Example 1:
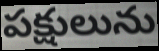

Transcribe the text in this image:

పక్షులును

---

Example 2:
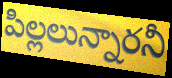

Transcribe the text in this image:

పిల్లలున్నారనీ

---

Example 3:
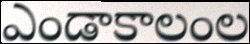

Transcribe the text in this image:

ఎండాకాలంల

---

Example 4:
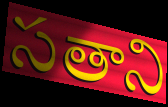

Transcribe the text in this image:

సతాని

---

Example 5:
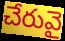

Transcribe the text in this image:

చేరువై